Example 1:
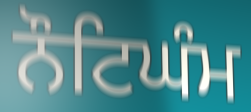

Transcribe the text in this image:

ਨੌਟਿਘੰਮ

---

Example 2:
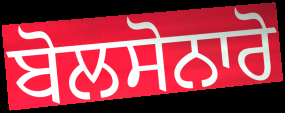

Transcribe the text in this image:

ਬੋਲਸੋਨਾਰੋ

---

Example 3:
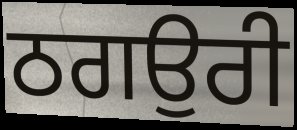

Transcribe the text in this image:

ਠਗਉਰੀ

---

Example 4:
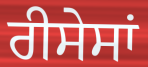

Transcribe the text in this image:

ਰੀਸੇਸਾਂ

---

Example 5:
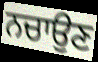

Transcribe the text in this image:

ਨਚਾਉਣ